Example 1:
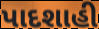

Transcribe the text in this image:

પાદશાહી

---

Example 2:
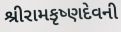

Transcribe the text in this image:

શ્રીરામકૃષ્ણદેવની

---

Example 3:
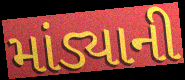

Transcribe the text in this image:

માંડ્યાની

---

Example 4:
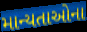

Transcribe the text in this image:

માન્યતાઓના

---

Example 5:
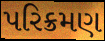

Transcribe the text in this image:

પરિક્રમણ